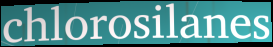
chlorosilanes